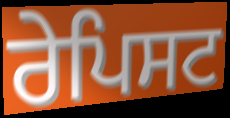
ਰੇਪਿਸਟ